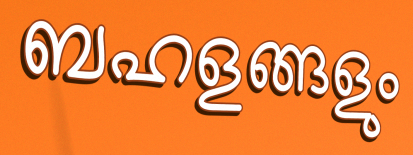
ബഹളങ്ങളും